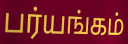
பர்யங்கம்